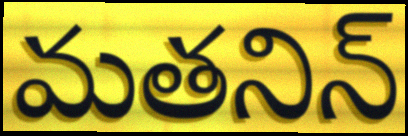
మతనిన్